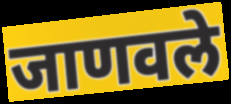
जाणवले